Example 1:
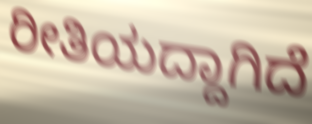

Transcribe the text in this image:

ರೀತಿಯದ್ದಾಗಿದೆ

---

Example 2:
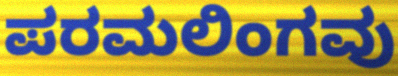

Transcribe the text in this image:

ಪರಮಲಿಂಗವು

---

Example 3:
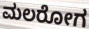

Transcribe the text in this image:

ಮಲರೋಗ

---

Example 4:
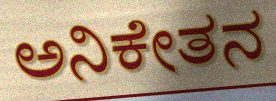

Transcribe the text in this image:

ಅನಿಕೇತನ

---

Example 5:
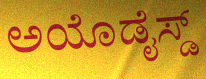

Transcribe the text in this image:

ಅಯೊಡೈಸ್ಡ್